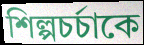
শিল্পচর্চাকে